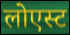
लोएस्ट